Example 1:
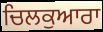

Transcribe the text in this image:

ਚਿਲਕੁਆਰਾ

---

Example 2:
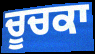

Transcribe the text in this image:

ਚੂਚਕਾ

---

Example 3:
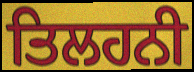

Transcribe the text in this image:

ਤਿਲਹਨੀ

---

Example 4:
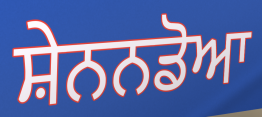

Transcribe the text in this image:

ਸ਼ੇਨਨਡੋਆ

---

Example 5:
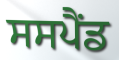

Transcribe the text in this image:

ਸਸਪੈੰਡ